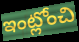
ఇంట్లోంచి